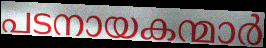
പടനായകന്മാർ